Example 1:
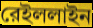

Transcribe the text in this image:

রেইললাইন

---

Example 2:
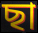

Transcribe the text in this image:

ছা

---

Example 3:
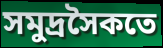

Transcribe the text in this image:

সমুদ্রসৈকতে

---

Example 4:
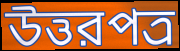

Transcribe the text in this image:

উত্তরপত্র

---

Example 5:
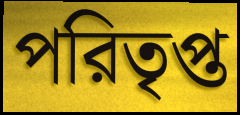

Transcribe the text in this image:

পরিতৃপ্ত